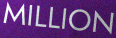
MILLION